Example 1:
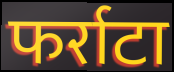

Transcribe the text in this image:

फर्राटा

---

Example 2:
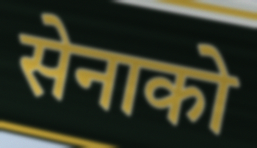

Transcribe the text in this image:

सेनाको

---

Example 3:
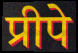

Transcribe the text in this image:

प्रीपे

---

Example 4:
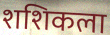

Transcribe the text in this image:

शशिकला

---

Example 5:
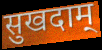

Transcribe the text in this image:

सुखदाम्